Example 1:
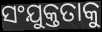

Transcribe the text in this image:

ସଂଯୁକ୍ତତାକୁ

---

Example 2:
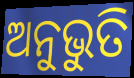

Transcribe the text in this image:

ଅନୁଭୁତି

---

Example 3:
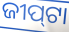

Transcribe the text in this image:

ଜୀପ୍‍ଟା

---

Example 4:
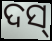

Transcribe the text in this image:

ଦସ୍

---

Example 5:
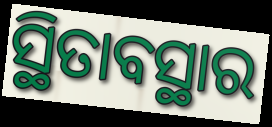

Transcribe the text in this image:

ସ୍ଥିତାବସ୍ଥାର